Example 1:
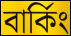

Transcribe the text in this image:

বার্কিং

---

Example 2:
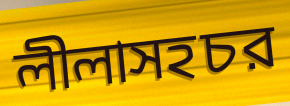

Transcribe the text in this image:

লীলাসহচর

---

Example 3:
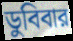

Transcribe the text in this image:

ডুবিবার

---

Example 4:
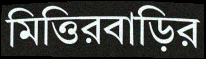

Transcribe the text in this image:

মিত্তিরবাড়ির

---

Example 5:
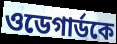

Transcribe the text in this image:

ওডেগার্ডকে